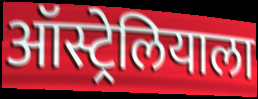
ऑस्ट्रेलियाला